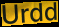
Urdd